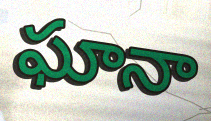
ఘానా